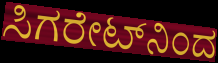
ಸಿಗರೇಟ್‌ನಿಂದ